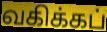
வகிக்கப்